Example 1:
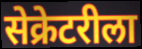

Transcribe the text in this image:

सेक्रेटरीला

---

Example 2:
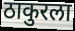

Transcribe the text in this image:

ठाकुरला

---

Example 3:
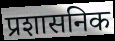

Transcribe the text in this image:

प्रशासनिक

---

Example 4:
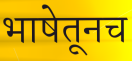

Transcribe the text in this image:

भाषेतूनच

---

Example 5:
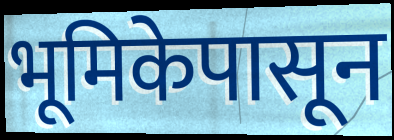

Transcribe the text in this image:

भूमिकेपासून